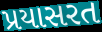
પ્રયાસરત